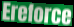
Ereforce